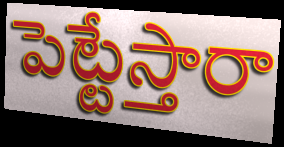
పెట్టేస్తారా